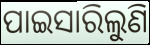
ପାଇସାରିଲୁଣି